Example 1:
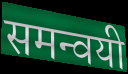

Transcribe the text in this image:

समन्वयी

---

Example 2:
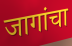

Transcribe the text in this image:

जागांचा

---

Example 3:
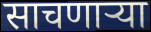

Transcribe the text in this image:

साचणार्‍या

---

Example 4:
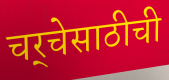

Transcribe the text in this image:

चर्चेसाठीची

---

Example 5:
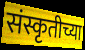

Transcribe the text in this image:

संस्कृतीच्या